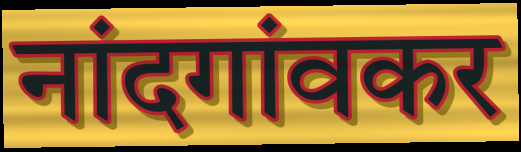
नांदगांवकर